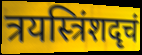
त्रयस्त्रिंशदृचं